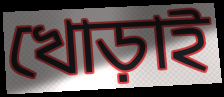
খোড়াই